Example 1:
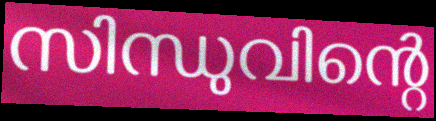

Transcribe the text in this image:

സിന്ധുവിന്റെ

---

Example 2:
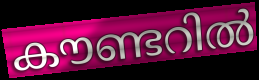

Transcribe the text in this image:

കൗണ്ടറിൽ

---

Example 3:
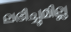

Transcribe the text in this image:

ലഭിച്ചുമില്ല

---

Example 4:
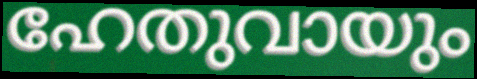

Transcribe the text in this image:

ഹേതുവായും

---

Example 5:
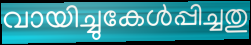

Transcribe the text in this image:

വായിച്ചുകേൾപ്പിച്ചതു